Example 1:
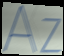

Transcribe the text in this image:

Az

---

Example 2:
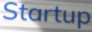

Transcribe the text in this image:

Startup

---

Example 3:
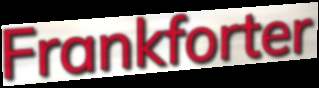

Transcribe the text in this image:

Frankforter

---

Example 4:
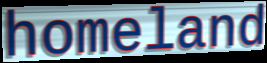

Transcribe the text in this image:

homeland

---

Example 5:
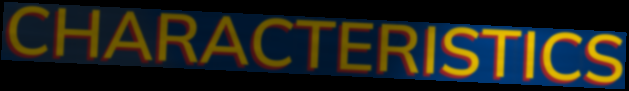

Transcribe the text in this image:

CHARACTERISTICS